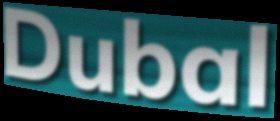
Dubal